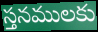
స్తనములకు